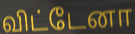
விட்டேனா